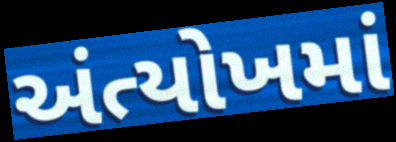
અંત્યોખમાં